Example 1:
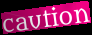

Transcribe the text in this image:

caution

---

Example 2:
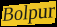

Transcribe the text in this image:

Bolpur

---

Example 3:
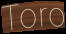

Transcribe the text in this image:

Toro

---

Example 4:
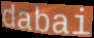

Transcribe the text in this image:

dabai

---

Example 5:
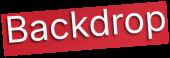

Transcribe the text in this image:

Backdrop